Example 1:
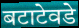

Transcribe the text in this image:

बटाटेवडे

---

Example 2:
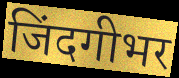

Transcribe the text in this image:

जिंदगीभर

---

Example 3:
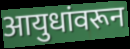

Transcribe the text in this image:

आयुधांवरून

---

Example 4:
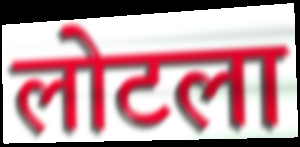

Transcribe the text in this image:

लोटला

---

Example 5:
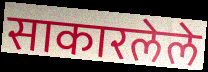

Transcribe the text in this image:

साकारलेले